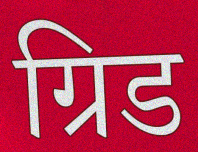
ग्रिड